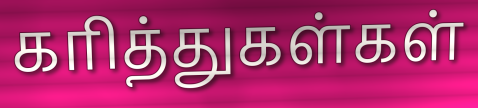
கரித்துகள்கள்